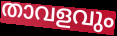
താവളവും